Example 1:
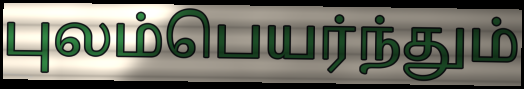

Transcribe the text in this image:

புலம்பெயர்ந்தும்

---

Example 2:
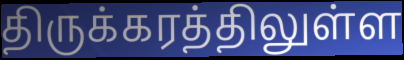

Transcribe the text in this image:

திருக்கரத்திலுள்ள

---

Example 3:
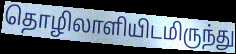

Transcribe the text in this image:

தொழிலாளியிடமிருந்து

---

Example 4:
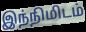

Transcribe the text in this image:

இந்நிமிடம்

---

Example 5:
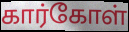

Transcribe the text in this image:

கார்கோள்